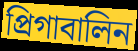
প্রিগাবালিন